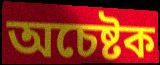
অচেষ্টক